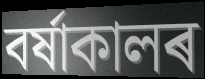
বৰ্ষাকালৰ